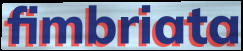
fimbriata